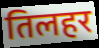
तिलहर